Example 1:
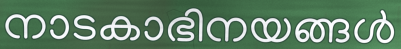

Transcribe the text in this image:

നാടകാഭിനയങ്ങൾ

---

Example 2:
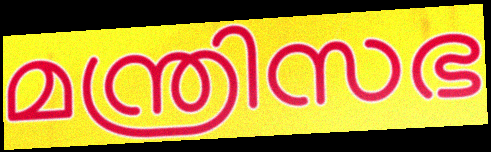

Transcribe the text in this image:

മന്ത്രിസഭ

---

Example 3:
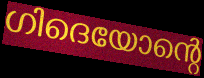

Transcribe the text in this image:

ഗിദെയോന്റെ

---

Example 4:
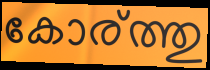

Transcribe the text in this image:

കോര്ത്തു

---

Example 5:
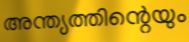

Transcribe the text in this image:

അന്ത്യത്തിന്റെയും